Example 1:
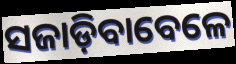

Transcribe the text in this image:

ସଜାଡ଼ିବାବେଳେ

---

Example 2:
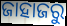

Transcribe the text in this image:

ଜାହାଜରୁ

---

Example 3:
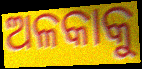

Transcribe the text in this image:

ଅଳକାକୁ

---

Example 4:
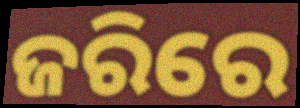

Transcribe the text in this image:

ଜରିରେ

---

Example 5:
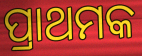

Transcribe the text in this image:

ପ୍ରାଥମକ